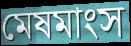
মেষমাংস